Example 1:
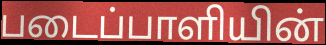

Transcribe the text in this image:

படைப்பாளியின்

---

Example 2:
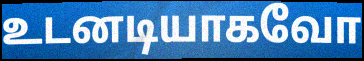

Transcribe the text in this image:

உடனடியாகவோ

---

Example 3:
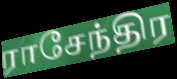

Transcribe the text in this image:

ராசேந்திர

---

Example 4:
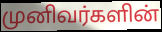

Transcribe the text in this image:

முனிவர்களின்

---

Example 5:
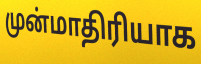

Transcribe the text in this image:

முன்மாதிரியாக